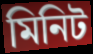
মিনিট